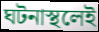
ঘটনাস্থলেই